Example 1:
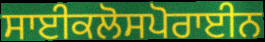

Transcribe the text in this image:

ਸਾਈਕਲੋਸਪੋਰਾਈਨ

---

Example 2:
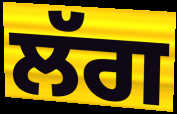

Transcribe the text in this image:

ਲੱਗ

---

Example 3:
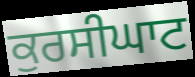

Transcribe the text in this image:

ਕੁਰਸੀਘਾਟ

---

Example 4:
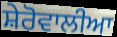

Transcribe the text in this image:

ਸ਼ੇਰੋਵਾਲੀਆ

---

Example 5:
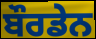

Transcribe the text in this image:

ਬੌਰਡੇਨ